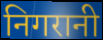
निगरानी